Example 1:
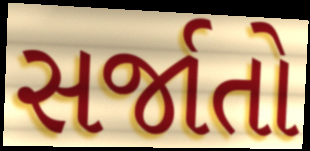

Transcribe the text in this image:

સર્જાતો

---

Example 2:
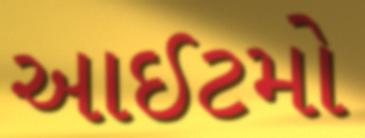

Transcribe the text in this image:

આઈટમો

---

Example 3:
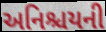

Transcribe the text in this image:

અનિશ્ચયની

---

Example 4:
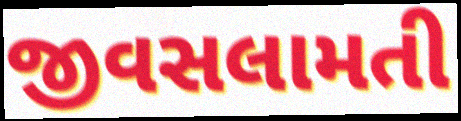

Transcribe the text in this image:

જીવસલામતી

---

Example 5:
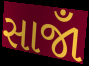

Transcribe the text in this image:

સાજાઁ